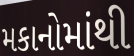
મકાનોમાંથી